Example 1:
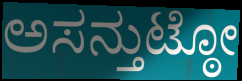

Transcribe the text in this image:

ಅಸನ್ತುಟ್ಠೋ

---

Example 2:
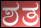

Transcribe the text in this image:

ಶತ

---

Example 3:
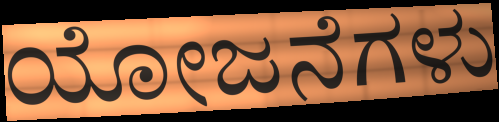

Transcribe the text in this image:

ಯೋಜನೆಗಳು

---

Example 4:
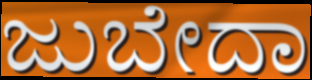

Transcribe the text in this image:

ಜುಬೇದಾ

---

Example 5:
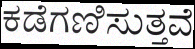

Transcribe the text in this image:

ಕಡೆಗಣಿಸುತ್ತವೆ